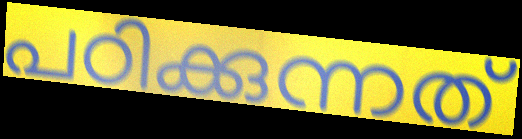
പഠിക്കുന്നത്